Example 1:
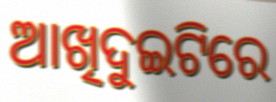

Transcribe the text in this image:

ଆଖିଦୁଇଟିରେ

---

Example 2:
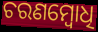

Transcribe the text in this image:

ଚରଣମ୍ବୋଧି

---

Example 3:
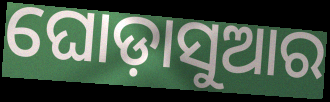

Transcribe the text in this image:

ଘୋଡ଼ାସୁଆର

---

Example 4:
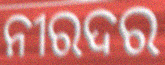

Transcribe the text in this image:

ନୀରଦର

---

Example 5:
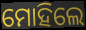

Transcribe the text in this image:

ମୋହିଲେ